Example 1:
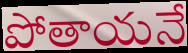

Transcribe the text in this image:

పోతాయనే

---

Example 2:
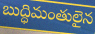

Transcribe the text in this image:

బుద్ధిమంతులైన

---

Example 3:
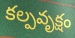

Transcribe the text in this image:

కల్పవృక్షం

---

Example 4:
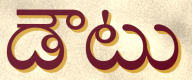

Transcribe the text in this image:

డౌటు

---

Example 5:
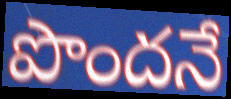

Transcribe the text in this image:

పొందనే